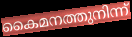
കൈമനത്തുനിന്ന്